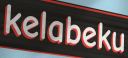
kelabeku